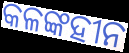
କଳଙ୍କହୀନ